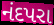
નંદપરા